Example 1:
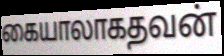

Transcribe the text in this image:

கையாலாகதவன்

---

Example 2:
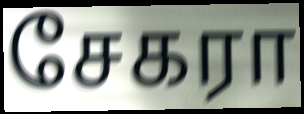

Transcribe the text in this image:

சேகரா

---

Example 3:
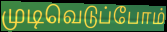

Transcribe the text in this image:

முடிவெடுப்போம்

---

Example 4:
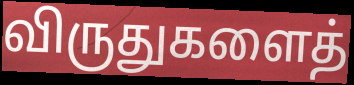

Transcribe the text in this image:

விருதுகளைத்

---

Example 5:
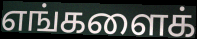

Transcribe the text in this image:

எங்களைக்